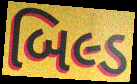
બિલ્ડ